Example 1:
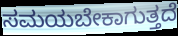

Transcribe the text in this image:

ಸಮಯಬೇಕಾಗುತ್ತದೆ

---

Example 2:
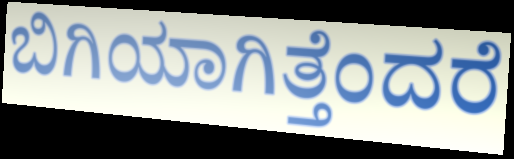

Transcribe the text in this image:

ಬಿಗಿಯಾಗಿತ್ತೆಂದರೆ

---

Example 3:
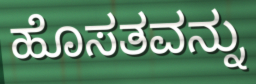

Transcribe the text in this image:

ಹೊಸತವನ್ನು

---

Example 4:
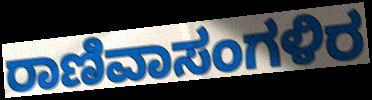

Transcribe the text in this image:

ರಾಣಿವಾಸಂಗಳಿರ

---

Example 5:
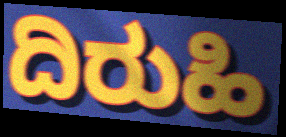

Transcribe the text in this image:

ದಿರುಹಿ